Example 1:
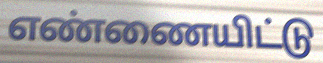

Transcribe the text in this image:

எண்ணையிட்டு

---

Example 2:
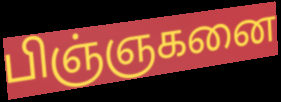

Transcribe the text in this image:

பிஞ்ஞகனை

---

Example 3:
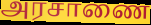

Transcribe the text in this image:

அரசாணை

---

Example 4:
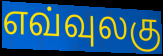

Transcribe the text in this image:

எவ்வுலகு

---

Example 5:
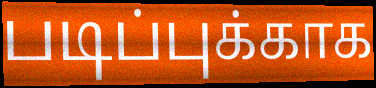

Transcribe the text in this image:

படிப்புக்காக